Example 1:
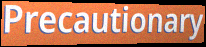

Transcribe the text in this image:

Precautionary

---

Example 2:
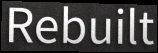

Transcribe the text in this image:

Rebuilt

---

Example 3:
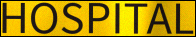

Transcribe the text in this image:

HOSPITAL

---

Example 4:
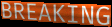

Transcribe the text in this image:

BREAKING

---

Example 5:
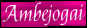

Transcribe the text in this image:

Ambejogai